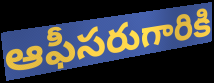
ఆఫీసరుగారికి